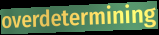
overdetermining